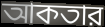
আকতার